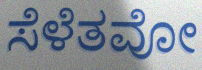
ಸೆಳೆತವೋ